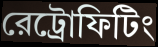
রেট্রোফিটিং